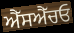
ਐੱਸਐੱਚਓ